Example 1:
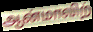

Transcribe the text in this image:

ஆன்மாவிற்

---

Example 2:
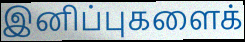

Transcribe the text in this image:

இனிப்புகளைக்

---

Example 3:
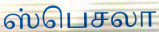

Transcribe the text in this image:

ஸ்பெசலா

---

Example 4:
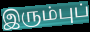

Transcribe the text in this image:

இரும்புப்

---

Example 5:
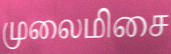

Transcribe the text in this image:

முலைமிசை